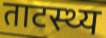
ताटस्थ्य